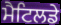
ਮੈਟਿਲਡੇ